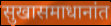
सुखासमाधानांत